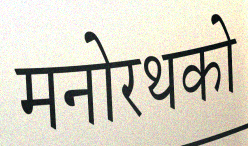
मनोरथको